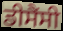
ਡੀਸੈਂਸੀ